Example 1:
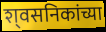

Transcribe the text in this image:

श्वसनिकांच्या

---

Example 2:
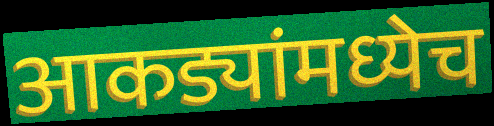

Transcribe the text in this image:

आकड्यांमध्येच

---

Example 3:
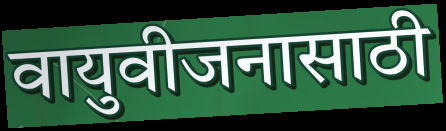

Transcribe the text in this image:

वायुवीजनासाठी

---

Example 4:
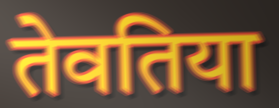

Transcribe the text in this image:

तेवतिया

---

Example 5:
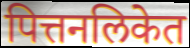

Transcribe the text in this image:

पित्तनलिकेत